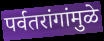
पर्वतरांगांमुळे